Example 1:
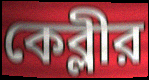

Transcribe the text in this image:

কেব্লীর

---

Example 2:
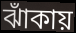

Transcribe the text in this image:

ঝাঁকায়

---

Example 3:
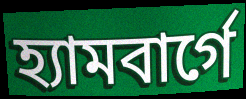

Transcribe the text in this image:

হ্যামবার্গে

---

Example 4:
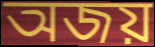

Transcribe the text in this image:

অজয়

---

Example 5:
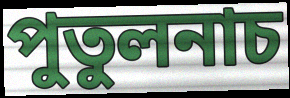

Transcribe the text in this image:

পুতুলনাচ